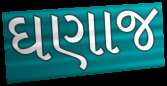
ઘણાજ